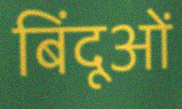
बिंदूओं